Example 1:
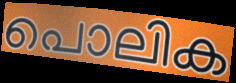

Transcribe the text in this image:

പൊലിക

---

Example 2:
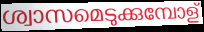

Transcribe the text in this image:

ശ്വാസമെടുക്കുമ്പോള്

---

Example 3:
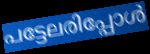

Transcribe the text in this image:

പട്ടേലരിപ്പോൾ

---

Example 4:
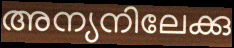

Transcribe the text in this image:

അന്യനിലേക്കു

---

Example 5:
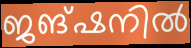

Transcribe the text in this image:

ജങ്ഷനിൽ